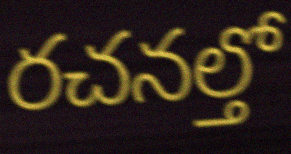
రచనల్తో